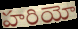
హరియో